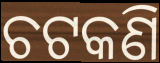
ଚଟକଣି